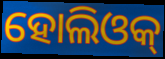
ହୋଲିଓକ୍